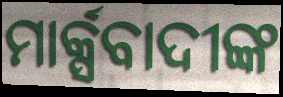
ମାର୍କ୍ସବାଦୀଙ୍କ